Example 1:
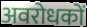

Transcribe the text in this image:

अवरोधकों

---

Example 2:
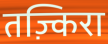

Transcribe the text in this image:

तज़्किरा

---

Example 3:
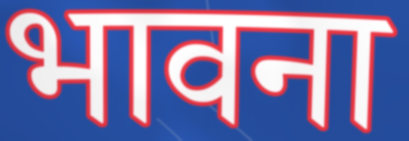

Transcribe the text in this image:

भावना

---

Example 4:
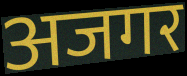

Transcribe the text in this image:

अजगर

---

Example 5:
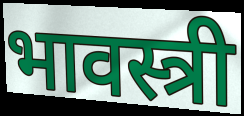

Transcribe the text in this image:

भावस्त्री